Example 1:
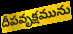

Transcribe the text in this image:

దీపవృక్షమును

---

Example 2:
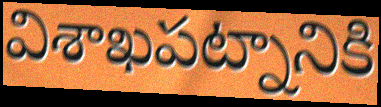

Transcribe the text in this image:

విశాఖపట్నానికి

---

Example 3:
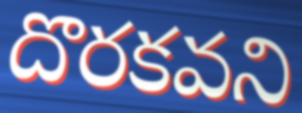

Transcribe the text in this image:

దొరకవని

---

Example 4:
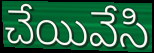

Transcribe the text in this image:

చేయివేసి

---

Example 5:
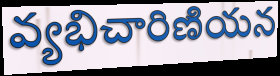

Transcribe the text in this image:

వ్యభిచారిణియన